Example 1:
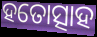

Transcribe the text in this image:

ହତୋତ୍ସାହ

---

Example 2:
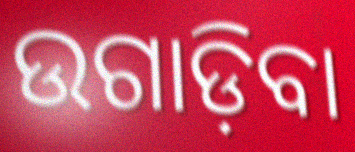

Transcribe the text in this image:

ଉଗାଡ଼ିବା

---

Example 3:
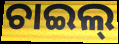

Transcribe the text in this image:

ଚାଇଲ୍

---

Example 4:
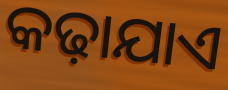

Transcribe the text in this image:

କଢ଼ାଯାଏ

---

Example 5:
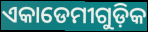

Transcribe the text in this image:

ଏକାଡେମୀଗୁଡ଼ିକ